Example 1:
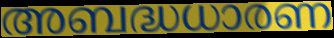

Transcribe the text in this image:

അബദ്ധധാരണ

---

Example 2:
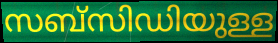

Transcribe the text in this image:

സബ്സിഡിയുള്ള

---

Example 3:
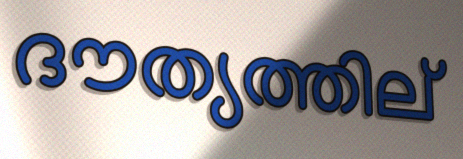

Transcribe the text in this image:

ദൗത്യത്തില്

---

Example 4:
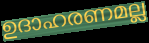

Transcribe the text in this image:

ഉദാഹരണമല്ല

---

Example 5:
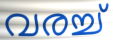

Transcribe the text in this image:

വരച്ച്